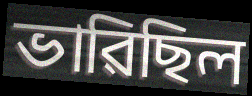
ভাৱিছিল